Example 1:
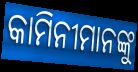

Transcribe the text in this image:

କାମିନୀମାନଙ୍କୁ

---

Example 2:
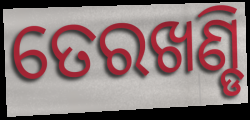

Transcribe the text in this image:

ତେରଖଣ୍ଡି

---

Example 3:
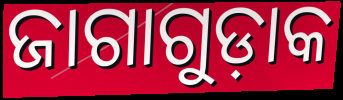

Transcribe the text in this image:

ଜାଗାଗୁଡ଼ାକ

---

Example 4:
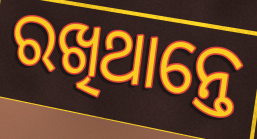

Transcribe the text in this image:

ରଖିଥାନ୍ତେ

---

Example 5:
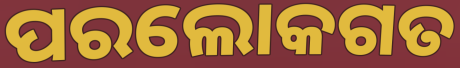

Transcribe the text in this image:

ପରଲୋକଗତ